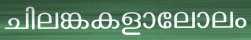
ചിലങ്കകളാലോലം